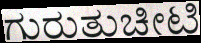
ಗುರುತುಚೀಟಿ